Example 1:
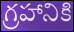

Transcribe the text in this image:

గ్రహానికి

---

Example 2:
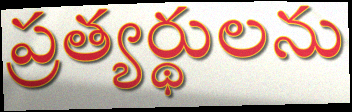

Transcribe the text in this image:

ప్రత్యర్థులను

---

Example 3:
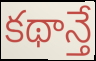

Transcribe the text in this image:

కథాన్తే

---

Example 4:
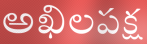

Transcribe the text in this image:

అఖిలపక్ష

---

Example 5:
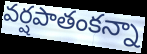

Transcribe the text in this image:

వర్షపాతంకన్నా